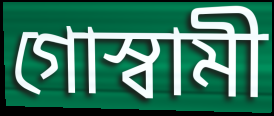
গোস্বামী